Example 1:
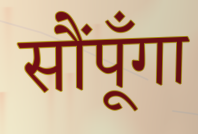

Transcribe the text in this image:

सौंपूँगा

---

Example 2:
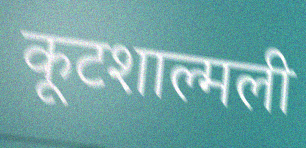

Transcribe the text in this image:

कूटशाल्मली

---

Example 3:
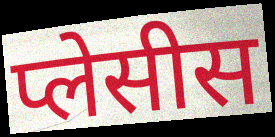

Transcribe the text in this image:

प्लेसीस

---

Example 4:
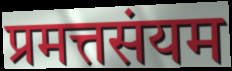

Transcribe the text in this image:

प्रमत्तसंयम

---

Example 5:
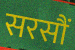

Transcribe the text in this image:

सरसौं